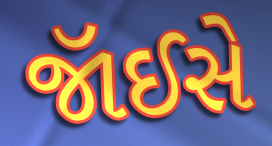
જૉઈસે